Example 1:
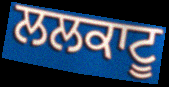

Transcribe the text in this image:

ਲਲਕਾਟੂ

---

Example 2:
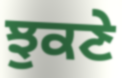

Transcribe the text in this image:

ਝੁਕਣੇ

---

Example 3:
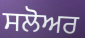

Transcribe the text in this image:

ਸਲੋਅਰ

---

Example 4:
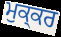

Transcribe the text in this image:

ਮੁਕ੍ਕਰ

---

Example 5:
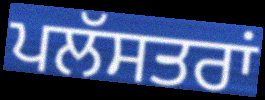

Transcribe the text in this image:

ਪਲੱਸਤਰਾਂ